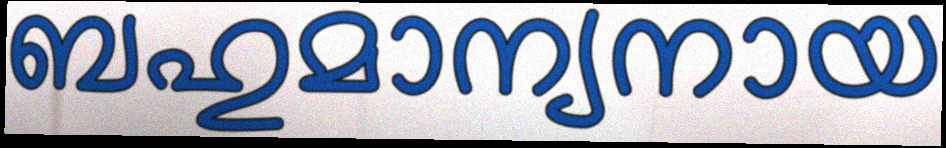
ബഹുമാന്യനായ